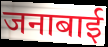
जनाबाई